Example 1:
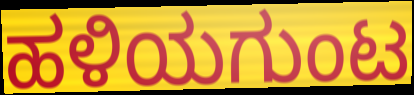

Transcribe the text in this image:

ಹಳಿಯಗುಂಟ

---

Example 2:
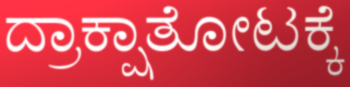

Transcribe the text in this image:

ದ್ರಾಕ್ಷಾತೋಟಕ್ಕೆ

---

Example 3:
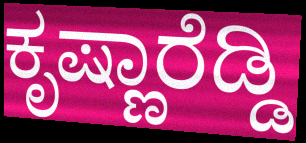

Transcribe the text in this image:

ಕೃಷ್ಣಾರೆಡ್ಡಿ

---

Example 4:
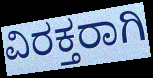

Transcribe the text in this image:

ವಿರಕ್ತರಾಗಿ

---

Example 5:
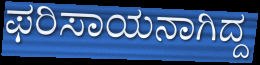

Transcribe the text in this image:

ಫರಿಸಾಯನಾಗಿದ್ದ